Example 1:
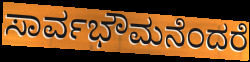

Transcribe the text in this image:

ಸಾರ್ವಭೌಮನೆಂದರೆ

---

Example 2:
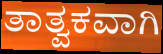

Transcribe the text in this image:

ತಾತ್ವಕವಾಗಿ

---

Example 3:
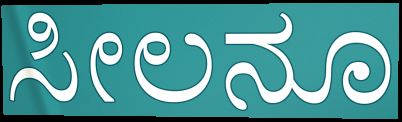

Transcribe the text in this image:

ಸೀಲನೂ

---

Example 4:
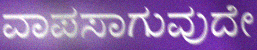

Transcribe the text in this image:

ವಾಪಸಾಗುವುದೇ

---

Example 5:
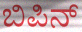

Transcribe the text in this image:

ಬಿಪಿನ್